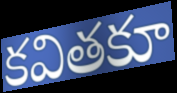
కవితకూ